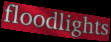
floodlights